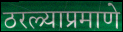
ठरल्याप्रमाणे